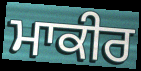
ਮਾਕੀਰ